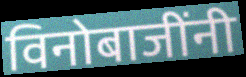
विनोबाजींनी